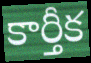
కార్తీక